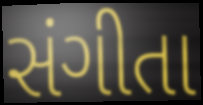
સંગીતા